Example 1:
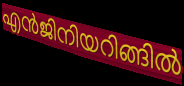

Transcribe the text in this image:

എൻജിനിയറിങ്ങിൽ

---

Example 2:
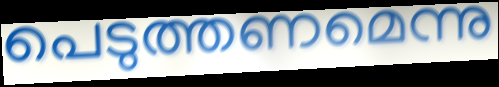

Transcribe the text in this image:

പെടുത്തണമെന്നു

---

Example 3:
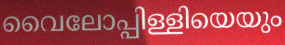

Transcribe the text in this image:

വൈലോപ്പിള്ളിയെയും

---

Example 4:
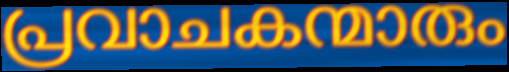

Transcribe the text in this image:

പ്രവാചകന്മാരും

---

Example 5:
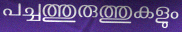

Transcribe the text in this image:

പച്ചത്തുരുത്തുകളും